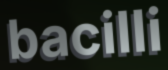
bacilli